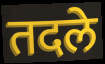
तदले